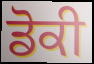
ਡੋਕੀ